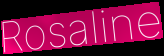
Rosaline